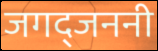
जगद्जननी